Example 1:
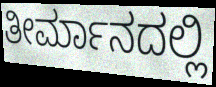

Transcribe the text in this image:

ತೀರ್ಮಾನದಲ್ಲಿ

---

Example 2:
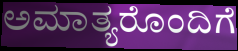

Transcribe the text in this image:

ಅಮಾತ್ಯರೊಂದಿಗೆ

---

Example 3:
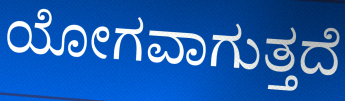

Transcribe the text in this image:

ಯೋಗವಾಗುತ್ತದೆ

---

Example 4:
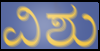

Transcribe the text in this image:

ವಿಶು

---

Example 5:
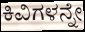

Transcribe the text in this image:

ಕಿವಿಗಳನ್ನೇ